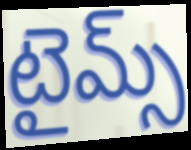
టైమ్స్